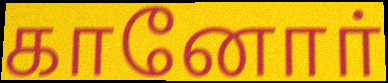
கானோர்